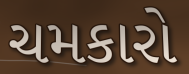
ચમકારો